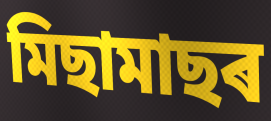
মিছামাছৰ